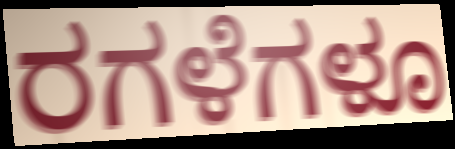
ರಗಳೆಗಳೂ